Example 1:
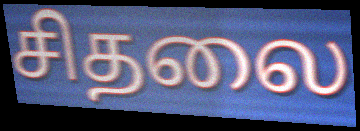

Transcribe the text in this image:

சிதலை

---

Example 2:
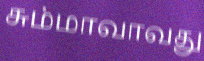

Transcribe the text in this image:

சும்மாவாவது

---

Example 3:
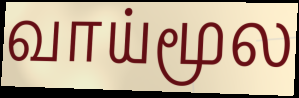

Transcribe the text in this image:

வாய்மூல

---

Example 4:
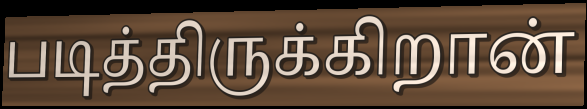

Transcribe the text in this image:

படித்திருக்கிறான்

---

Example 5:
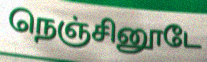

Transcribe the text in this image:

நெஞ்சினூடே